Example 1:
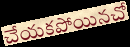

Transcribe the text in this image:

చేయకపోయినచో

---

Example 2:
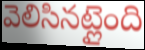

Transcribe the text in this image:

వెలిసినట్లైంది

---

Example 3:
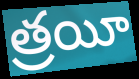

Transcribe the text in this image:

త్రయీ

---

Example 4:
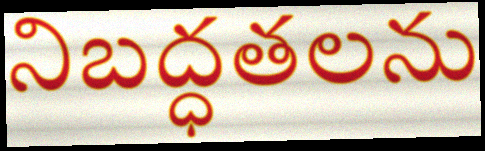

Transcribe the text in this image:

నిబద్ధతలను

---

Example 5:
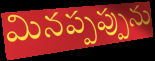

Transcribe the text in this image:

మినప్పప్పును